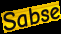
Sabse